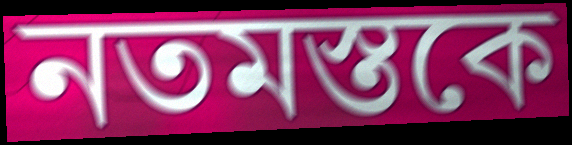
নতমস্তকে